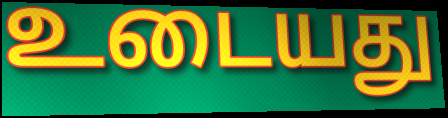
உடையது